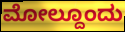
ಮೋಲ್ದೂಂದು